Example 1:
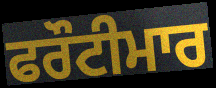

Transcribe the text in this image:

ਫਰੌਟੀਮਾਰ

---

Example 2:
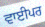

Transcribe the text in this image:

ਵਾਈਪਰ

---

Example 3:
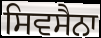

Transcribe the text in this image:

ਸਿਵਸੈਨਾ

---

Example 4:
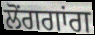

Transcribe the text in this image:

ਲੋਂਗਗਾਂਗ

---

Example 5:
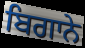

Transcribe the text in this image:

ਬਿਗਾਨੇ